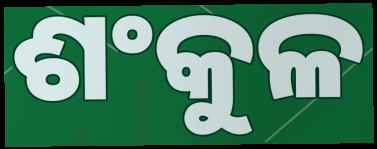
ଶଂକୁଳ